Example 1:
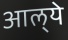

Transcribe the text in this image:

आल्ये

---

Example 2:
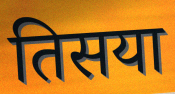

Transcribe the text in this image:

तिसया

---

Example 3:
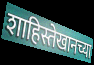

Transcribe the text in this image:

शाहिस्तेखानच्या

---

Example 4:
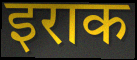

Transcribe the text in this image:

इराक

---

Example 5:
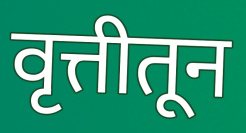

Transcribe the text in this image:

वृत्तीतून